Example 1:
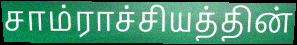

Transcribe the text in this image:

சாம்ராச்சியத்தின்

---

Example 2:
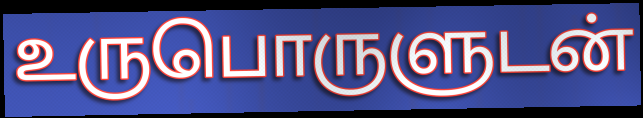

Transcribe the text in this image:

உருபொருளுடன்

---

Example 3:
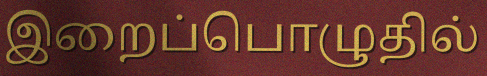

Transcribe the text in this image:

இறைப்பொழுதில்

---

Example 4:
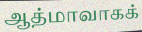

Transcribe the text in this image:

ஆத்மாவாகக்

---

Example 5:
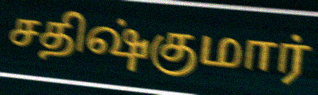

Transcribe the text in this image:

சதிஷ்குமார்